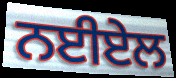
ਨਈਏਲ